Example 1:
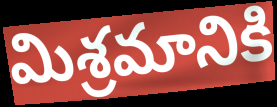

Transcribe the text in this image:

మిశ్రమానికి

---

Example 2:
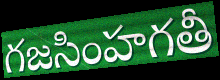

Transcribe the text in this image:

గజసింహగతీ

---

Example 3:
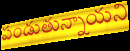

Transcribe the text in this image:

పండుతున్నాయని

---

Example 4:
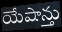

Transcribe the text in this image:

యేషాన్తు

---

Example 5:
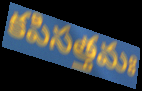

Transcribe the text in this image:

కపిసత్తమః